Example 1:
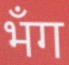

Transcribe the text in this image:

भँग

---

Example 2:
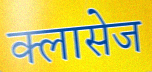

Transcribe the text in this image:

क्लासेज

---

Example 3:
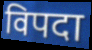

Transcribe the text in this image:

विपदा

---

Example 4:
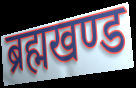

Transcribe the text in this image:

ब्रह्मखण्ड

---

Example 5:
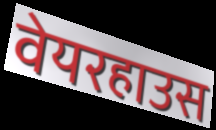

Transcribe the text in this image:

वेयरहाउस